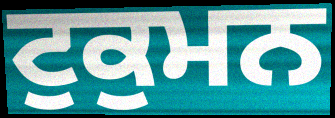
ਟੁਕੁਮਨ